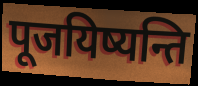
पूजयिष्यन्ति